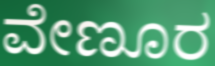
ವೇಣೂರ